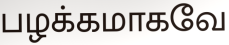
பழக்கமாகவே